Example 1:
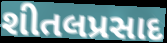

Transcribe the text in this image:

શીતલપ્રસાદ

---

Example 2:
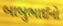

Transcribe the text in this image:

બાબુભાઈનો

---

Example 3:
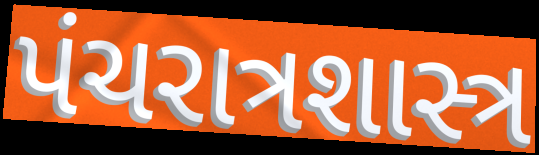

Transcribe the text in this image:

પંચરાત્રશાસ્ત્ર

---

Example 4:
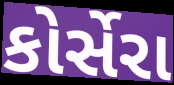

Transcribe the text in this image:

કોર્સેરા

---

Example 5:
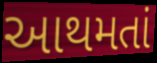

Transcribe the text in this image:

આથમતાં